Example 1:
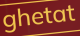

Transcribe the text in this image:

ghetat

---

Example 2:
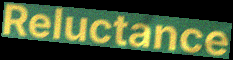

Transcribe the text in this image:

Reluctance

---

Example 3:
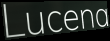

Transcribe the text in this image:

Lucena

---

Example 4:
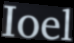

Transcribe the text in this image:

Ioel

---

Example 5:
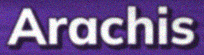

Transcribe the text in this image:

Arachis